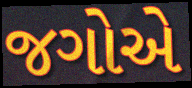
જગોએ